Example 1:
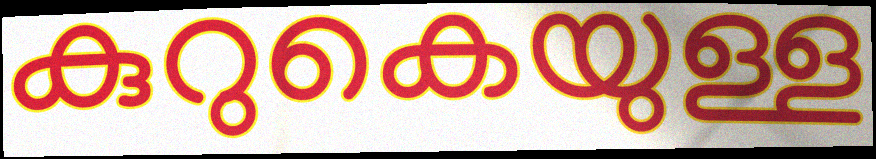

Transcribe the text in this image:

കുറുകെയുള്ള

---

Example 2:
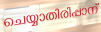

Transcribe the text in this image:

ചെയ്യാതിരിപ്പാന്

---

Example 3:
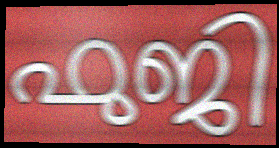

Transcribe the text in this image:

ഫുജി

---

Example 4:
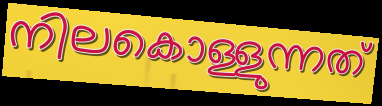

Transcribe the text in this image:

നിലകൊള്ളുന്നത്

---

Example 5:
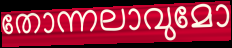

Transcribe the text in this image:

തോന്നലാവുമോ